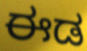
ಈಡ